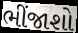
ભીંજાશો